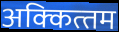
अक्‍कित्‍तम